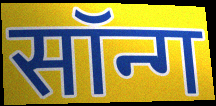
सॉन्ग